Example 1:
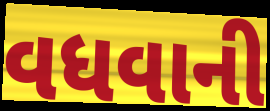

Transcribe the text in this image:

વધવાની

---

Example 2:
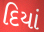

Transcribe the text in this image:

દિયાં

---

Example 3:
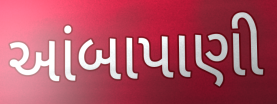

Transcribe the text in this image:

આંબાપાણી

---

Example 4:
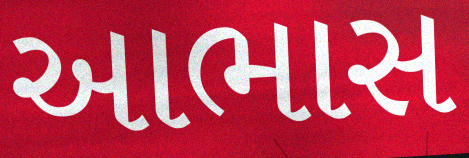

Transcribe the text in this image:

આભાસ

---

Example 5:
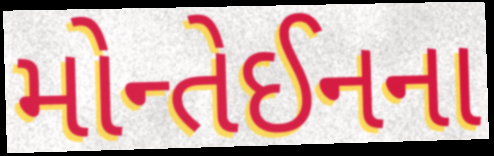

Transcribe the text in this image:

મોન્તેઈનના